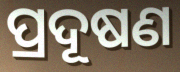
ପ୍ରଦୂଷଣ